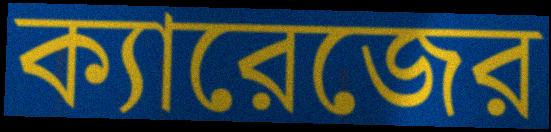
ক্যারেজের